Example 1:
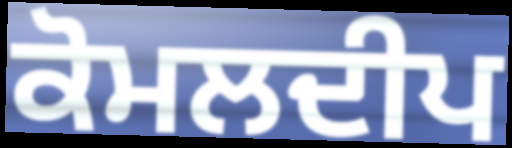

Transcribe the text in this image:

ਕੋਮਲਦੀਪ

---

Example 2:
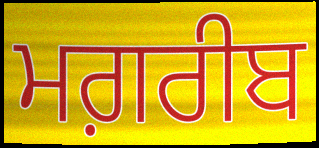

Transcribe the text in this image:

ਮਗ਼ਰੀਬ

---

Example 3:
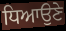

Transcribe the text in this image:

ਧਿਆਉਣੇ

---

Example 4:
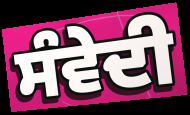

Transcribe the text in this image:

ਸੰਵੇਦੀ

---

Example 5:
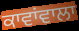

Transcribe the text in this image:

ਕਾਵਾਂਵਾਲਾ